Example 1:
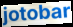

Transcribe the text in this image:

jotobar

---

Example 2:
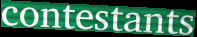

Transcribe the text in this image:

contestants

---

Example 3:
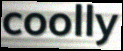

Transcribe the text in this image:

coolly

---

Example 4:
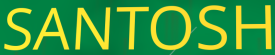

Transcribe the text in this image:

SANTOSH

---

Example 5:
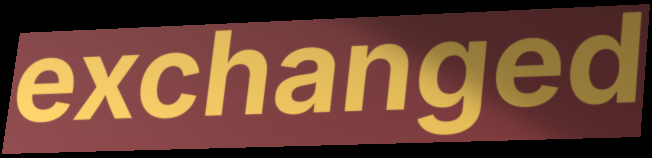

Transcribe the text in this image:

exchanged